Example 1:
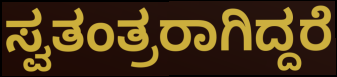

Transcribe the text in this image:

ಸ್ವತಂತ್ರರಾಗಿದ್ದರೆ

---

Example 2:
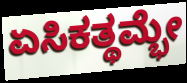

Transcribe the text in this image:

ಏಸಿಕತ್ಥಮ್ಭೇ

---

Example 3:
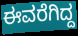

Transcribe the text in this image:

ಈವರೆಗಿದ್ದ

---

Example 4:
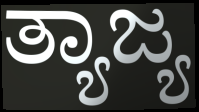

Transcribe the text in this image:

ತ್ಯಾಜ್ಯ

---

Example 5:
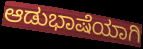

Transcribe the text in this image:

ಆಡುಭಾಷೆಯಾಗಿ